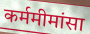
कर्ममीमांसा